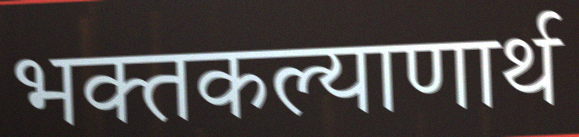
भक्तकल्याणार्थ